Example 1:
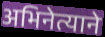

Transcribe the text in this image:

अभिनेत्याने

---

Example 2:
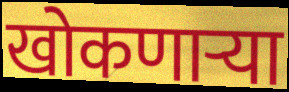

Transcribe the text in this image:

खोकणाऱ्या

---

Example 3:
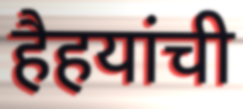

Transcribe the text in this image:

हैहयांची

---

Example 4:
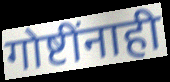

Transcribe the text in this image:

गोष्टींनाही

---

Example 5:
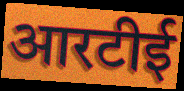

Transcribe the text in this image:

आरटीई